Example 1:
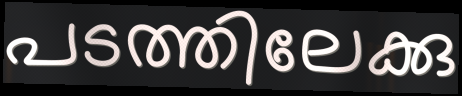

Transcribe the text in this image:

പടത്തിലേക്കു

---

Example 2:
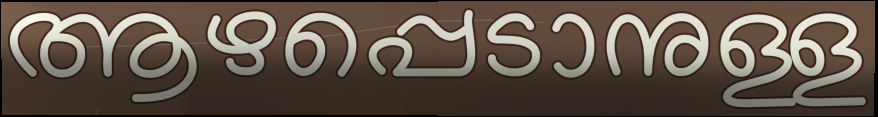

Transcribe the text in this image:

ആഴപ്പെടാനുള്ള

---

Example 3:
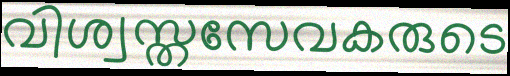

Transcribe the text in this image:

വിശ്വസ്തസേവകരുടെ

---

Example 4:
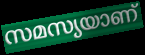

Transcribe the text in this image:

സമസ്യയാണ്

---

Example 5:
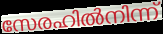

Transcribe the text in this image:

സേരഹിൽനിന്ന്